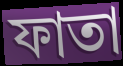
ফাতা